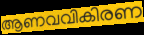
ആണവവികിരണ